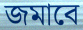
জমাবে